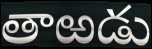
తాఱడు